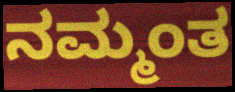
ನಮ್ಮಂತ